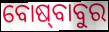
ବୋଷ୍‍ବାବୁର